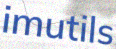
imutils